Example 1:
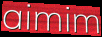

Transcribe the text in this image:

aimim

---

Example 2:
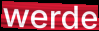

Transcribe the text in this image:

werde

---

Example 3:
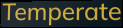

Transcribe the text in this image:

Temperate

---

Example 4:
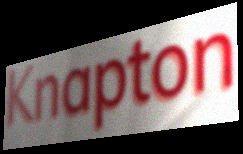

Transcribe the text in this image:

Knapton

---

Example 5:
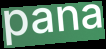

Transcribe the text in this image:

pana